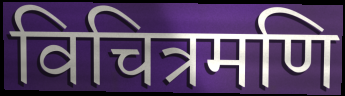
विचित्रमणि